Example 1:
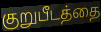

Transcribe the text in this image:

குறுபீடத்தை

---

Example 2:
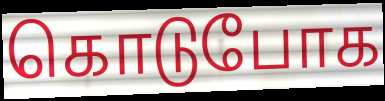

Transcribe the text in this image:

கொடுபோக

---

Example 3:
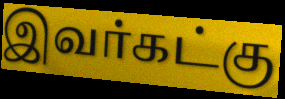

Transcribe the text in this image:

இவர்கட்கு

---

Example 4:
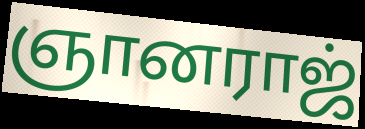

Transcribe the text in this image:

ஞானராஜ்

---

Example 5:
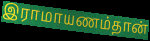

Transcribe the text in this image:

இராமாயணம்தான்